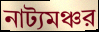
নাট্যমঞ্চর